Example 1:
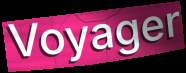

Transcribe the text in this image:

Voyager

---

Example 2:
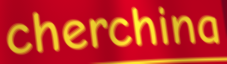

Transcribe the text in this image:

cherchina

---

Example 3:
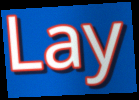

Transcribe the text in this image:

Lay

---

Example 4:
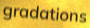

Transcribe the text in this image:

gradations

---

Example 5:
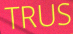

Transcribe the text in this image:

TRUS